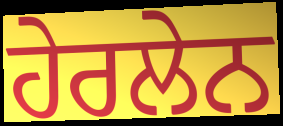
ਹੇਰਲੇਨ